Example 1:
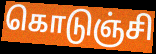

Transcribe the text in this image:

கொடுஞ்சி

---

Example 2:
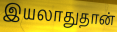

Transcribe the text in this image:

இயலாதுதான்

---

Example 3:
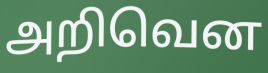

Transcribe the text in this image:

அறிவென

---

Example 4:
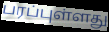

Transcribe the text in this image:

பரப்புள்ளது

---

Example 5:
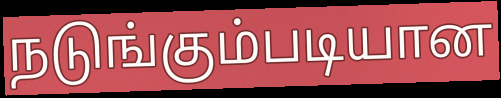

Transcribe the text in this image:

நடுங்கும்படியான